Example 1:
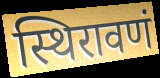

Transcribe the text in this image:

स्थिरावणं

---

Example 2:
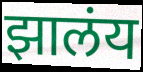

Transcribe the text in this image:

झालंय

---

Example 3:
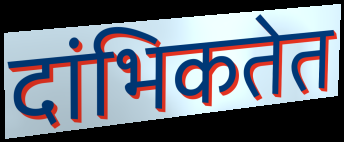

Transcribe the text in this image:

दांभिकतेत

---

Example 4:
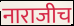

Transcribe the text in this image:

नाराजीच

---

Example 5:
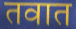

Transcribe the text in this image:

तवात